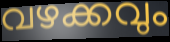
വഴക്കവും